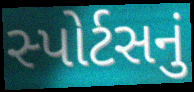
સ્પોર્ટસનું